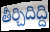
తీర్చిదిద్ది